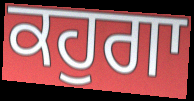
ਕਹੁਗਾ